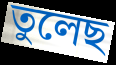
তুলেছ